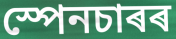
স্পেনচাৰৰ